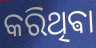
କରିଥିଵା